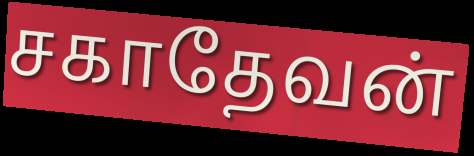
சகாதேவன்